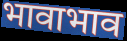
भावाभाव